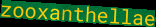
zooxanthellae